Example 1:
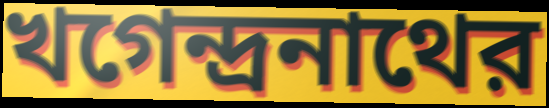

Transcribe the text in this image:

খগেন্দ্রনাথের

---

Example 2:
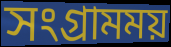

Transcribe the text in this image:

সংগ্রামময়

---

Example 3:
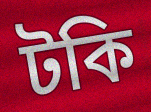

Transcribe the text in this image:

টকি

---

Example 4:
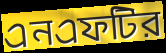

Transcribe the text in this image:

এনএফটির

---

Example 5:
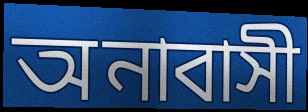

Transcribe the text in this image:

অনাবাসী